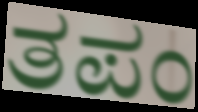
ತಪಂ